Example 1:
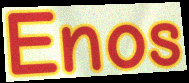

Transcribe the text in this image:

Enos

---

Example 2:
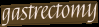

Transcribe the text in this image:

gastrectomy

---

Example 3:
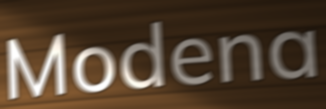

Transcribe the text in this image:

Modena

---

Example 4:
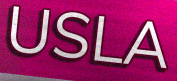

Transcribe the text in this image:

USLA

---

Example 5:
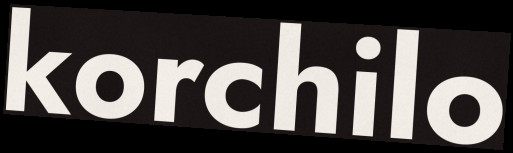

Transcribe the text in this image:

korchilo